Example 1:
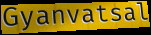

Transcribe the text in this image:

Gyanvatsal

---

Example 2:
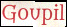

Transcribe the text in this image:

Goupil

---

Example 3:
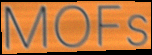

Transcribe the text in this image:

MOFs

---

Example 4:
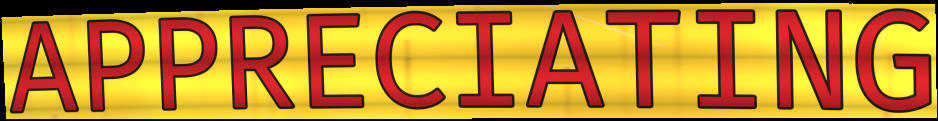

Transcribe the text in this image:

APPRECIATING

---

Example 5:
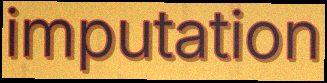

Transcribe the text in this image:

imputation